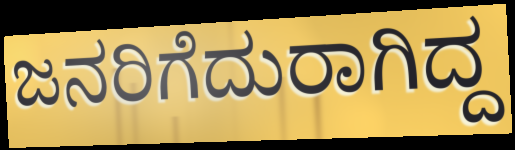
ಜನರಿಗೆದುರಾಗಿದ್ದ